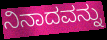
ನಿನಾದವನ್ನು